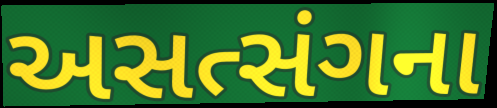
અસત્સંગના